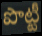
పొట్టీ